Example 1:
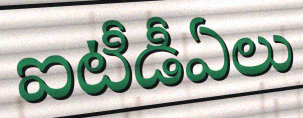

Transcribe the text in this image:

ఐటీడీఏలు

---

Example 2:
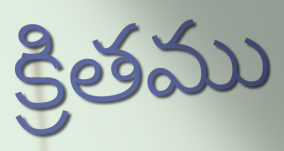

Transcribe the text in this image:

క్రితము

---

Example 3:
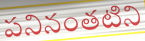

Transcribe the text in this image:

పనినంతటిని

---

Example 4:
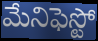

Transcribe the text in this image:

మేనిఫెస్టో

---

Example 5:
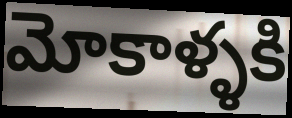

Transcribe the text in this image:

మోకాళ్ళకి